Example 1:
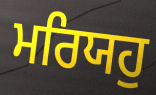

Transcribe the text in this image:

ਮਰਿਯਹੁ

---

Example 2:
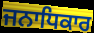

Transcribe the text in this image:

ਜਨਾਧਿਕਾਰ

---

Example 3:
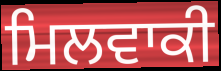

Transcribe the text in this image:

ਮਿਲਵਾਕੀ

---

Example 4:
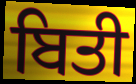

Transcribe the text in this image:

ਬਿਤੀ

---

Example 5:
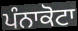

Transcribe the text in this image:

ਪੰਨਾਕੋਟਾ